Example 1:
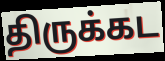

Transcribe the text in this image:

திருக்கட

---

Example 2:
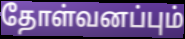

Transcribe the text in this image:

தோள்வனப்பும்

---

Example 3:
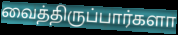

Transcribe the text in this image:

வைத்திருப்பார்களா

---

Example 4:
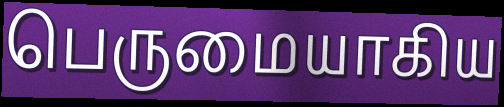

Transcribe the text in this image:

பெருமையாகிய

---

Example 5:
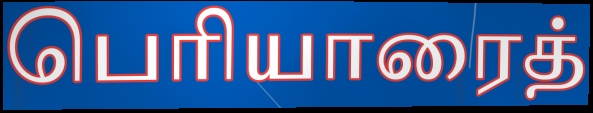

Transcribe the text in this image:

பெரியாரைத்